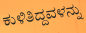
ಕುಳಿತಿದ್ದವಳನ್ನು